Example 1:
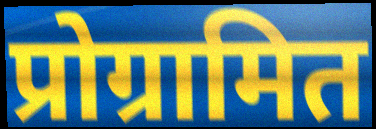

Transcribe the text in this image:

प्रोग्रामित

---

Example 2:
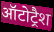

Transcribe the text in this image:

ऑटोट्रैश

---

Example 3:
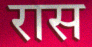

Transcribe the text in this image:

रास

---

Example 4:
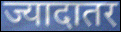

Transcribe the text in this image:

ज्‍यादातर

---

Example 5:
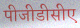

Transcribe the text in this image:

पीजीडीसीए